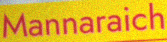
Mannaraich